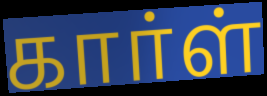
கார்ள்